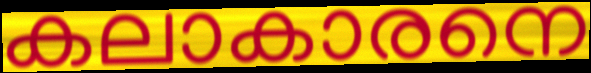
കലാകാരനെ